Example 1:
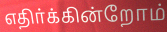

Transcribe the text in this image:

எதிர்க்கின்றோம்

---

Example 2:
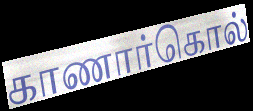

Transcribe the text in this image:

காணார்கொல்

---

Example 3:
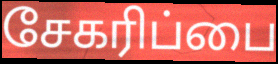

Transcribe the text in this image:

சேகரிப்பை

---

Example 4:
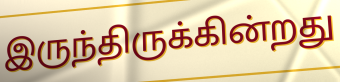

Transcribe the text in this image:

இருந்திருக்கின்றது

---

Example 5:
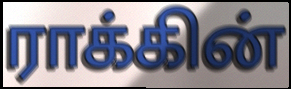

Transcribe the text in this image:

ராக்கின்